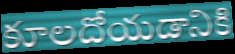
కూలదోయడానికి